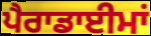
ਪੈਰਾਡਾਈਮਾਂ